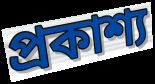
প্রকাশ্য